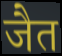
जैत